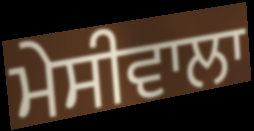
ਮੇਸੀਵਾਲਾ